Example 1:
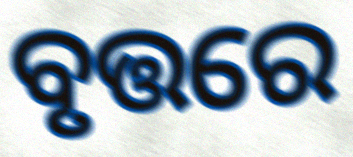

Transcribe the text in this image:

ବୃତ୍ତରେ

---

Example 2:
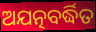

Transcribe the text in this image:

ଅଯତ୍ନବର୍ଦ୍ଧିତ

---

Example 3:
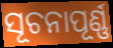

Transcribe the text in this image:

ସୂଚନାପୂର୍ଣ୍ଣ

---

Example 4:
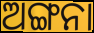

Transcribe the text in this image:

ଅଙ୍ଗନା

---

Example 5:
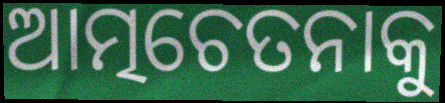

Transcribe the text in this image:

ଆତ୍ମଚେତନାକୁ